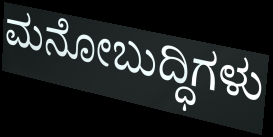
ಮನೋಬುದ್ಧಿಗಳು